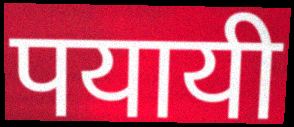
पयायी